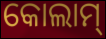
କୋଲାମ୍